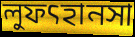
লুফৎহানসা